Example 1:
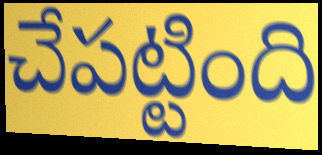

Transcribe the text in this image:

చేపట్టింది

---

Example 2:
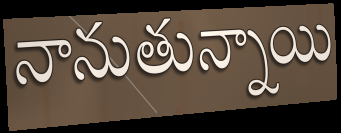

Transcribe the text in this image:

నానుతున్నాయి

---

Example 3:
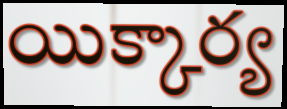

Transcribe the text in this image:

యిక్కార్య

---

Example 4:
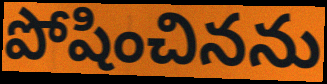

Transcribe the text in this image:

పోషించినను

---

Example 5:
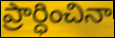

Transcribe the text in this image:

ప్రార్ధించినా